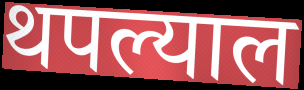
थपल्याल